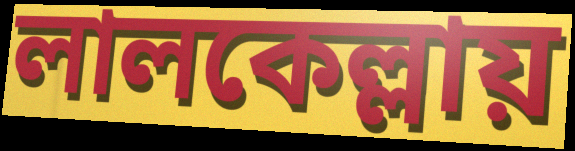
লালকেল্লায়